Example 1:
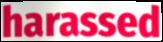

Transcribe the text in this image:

harassed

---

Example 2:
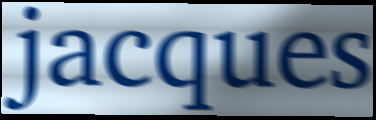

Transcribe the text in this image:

jacques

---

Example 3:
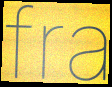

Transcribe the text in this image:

fra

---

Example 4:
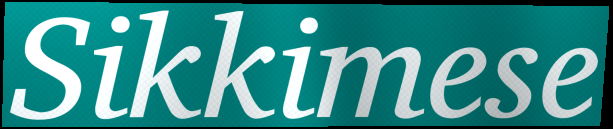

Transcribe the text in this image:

Sikkimese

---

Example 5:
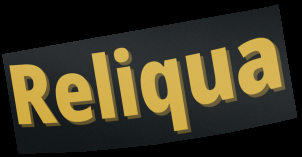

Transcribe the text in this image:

Reliqua